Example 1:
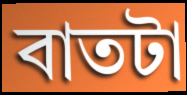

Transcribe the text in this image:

বাতটা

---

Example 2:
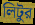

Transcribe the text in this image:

লিটুর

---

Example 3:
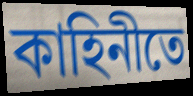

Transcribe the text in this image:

কাহিনীতে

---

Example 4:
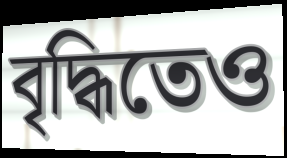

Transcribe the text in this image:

বৃদ্ধিতেও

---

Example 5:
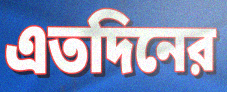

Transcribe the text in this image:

এতদিনের